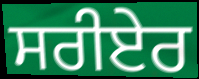
ਸਰੀਏਰ